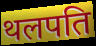
थलपति